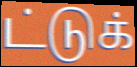
ட்டுக்